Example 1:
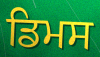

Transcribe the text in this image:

ਡਿਮਸ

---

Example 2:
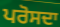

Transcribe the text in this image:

ਪਰੋਸਦਾ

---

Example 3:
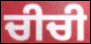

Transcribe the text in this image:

ਚੀਚੀ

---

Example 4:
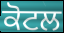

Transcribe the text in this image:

ਕੋਟਲ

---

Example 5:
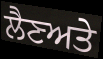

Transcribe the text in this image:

ਲੈਣਅਤੇ